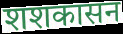
शशकासन